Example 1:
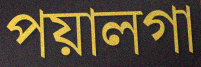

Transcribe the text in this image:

পয়ালগা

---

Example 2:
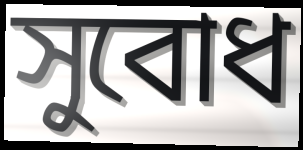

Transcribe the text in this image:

সুবোধ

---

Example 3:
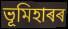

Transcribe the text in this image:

ভূমিহাৰৰ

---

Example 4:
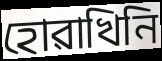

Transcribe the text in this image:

হোৱাখিনি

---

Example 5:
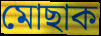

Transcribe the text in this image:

মোছাক